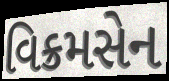
વિક્રમસેન